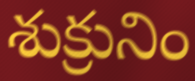
శుక్రునిం